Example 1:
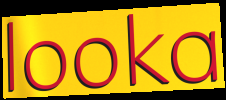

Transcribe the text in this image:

looka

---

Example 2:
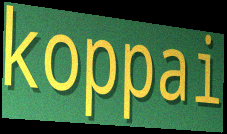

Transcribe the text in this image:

koppai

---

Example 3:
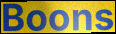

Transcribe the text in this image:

Boons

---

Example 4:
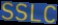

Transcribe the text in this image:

SSLC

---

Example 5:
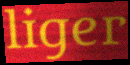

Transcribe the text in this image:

liger